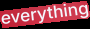
everything